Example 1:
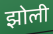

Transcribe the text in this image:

झोली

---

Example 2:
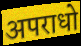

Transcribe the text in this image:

अपराधो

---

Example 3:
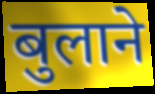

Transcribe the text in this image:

बुलाने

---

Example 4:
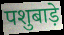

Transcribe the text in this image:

पशुबाड़े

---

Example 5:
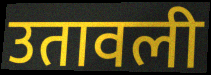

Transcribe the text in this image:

उतावली